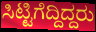
ಸಿಟ್ಟಿಗೆದ್ದಿದ್ದರು